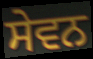
ਸੇਵਨ